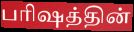
பரிஷத்தின்